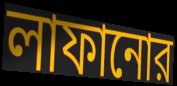
লাফানোর